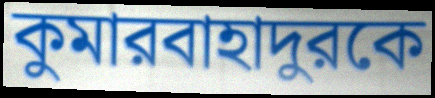
কুমারবাহাদুরকে